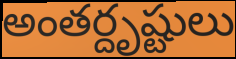
అంతర్దృష్టులు